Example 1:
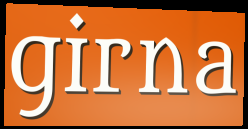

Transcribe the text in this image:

girna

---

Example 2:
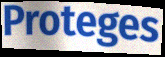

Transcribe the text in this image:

Proteges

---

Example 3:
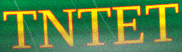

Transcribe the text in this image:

TNTET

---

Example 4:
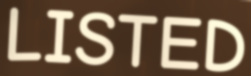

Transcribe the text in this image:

LISTED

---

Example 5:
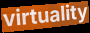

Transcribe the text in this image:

virtuality